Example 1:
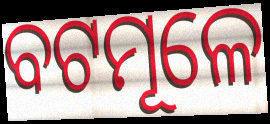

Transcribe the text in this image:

ବଟମୂଳେ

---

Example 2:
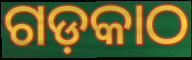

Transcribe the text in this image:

ଗଡ଼କାଠ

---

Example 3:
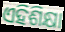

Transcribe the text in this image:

ଏହିଶିକ୍ଷା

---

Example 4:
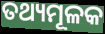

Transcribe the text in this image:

ତଥ୍ୟମୂଳକ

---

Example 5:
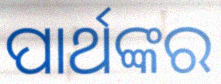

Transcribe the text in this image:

ପାର୍ଥଙ୍କର